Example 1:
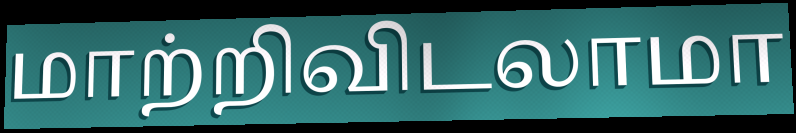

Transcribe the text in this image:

மாற்றிவிடலாமா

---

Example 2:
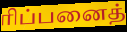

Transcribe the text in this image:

ரிப்பனைத்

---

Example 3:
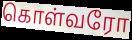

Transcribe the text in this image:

கொள்வரோ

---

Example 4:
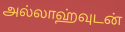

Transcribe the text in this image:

அல்லாஹ்வுடன்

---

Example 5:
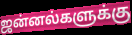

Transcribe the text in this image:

ஜன்னல்களுக்கு